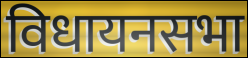
विधायनसभा